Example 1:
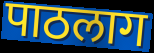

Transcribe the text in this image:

पाठलाग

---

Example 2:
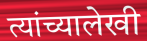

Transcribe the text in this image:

त्यांच्यालेखी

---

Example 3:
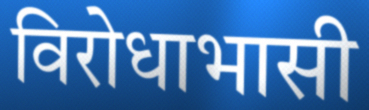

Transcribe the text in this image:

विरोधाभासी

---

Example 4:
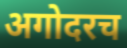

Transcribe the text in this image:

अगोदरच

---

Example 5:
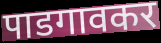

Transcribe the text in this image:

पाडगावकर